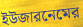
ইউজারনেমের